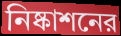
নিষ্কাশনের